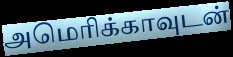
அமெரிக்காவுடன்